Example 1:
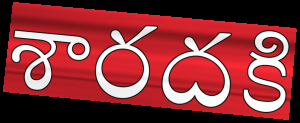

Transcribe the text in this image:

శారదకి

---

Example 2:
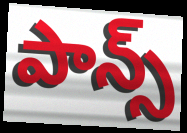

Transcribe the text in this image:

పాన్స్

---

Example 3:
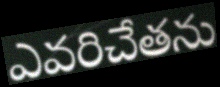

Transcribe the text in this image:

ఎవరిచేతను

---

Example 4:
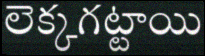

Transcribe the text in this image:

లెక్కగట్టాయి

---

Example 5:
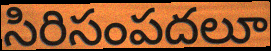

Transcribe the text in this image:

సిరిసంపదలూ